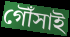
গৌঁসাই